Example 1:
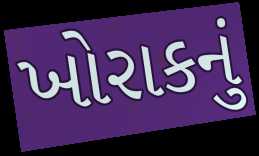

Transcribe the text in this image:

ખોરાકનું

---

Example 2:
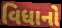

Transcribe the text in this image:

વિધાનો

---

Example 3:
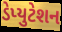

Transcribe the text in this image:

ડેપ્યુટેશન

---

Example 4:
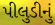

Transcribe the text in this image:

પીલુડીનું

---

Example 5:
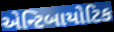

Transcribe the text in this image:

એન્ટિબાયોટિક